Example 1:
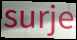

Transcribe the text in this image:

surje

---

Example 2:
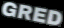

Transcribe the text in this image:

GRED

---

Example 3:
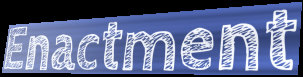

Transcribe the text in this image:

Enactment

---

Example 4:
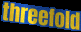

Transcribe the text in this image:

threefold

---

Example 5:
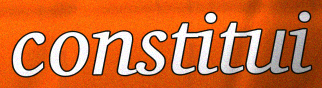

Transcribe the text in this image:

constitui